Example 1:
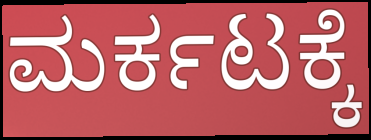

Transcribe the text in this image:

ಮರ್ಕಟಕ್ಕೆ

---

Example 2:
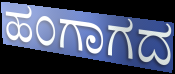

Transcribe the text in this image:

ಹಂಗಾಗದ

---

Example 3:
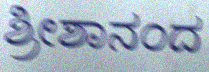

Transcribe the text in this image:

ಶ್ರೀಶಾನಂದ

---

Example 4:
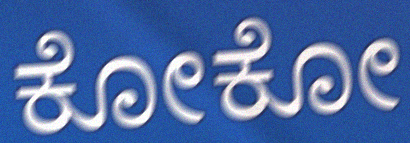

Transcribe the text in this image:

ಕೋಕೋ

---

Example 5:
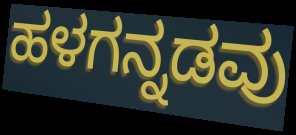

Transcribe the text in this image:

ಹಳಗನ್ನಡವು